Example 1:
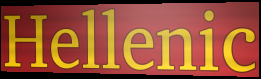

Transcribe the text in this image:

Hellenic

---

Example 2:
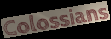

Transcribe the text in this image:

Colossians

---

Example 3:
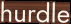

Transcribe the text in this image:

hurdle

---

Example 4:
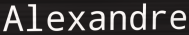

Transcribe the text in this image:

Alexandre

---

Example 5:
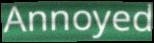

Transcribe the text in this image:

Annoyed